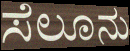
ಸೆಲೂನು